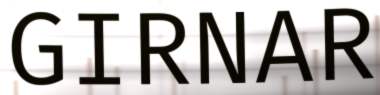
GIRNAR